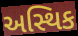
અસ્થિક